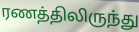
ரணத்திலிருந்து